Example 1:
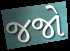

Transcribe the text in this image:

જજો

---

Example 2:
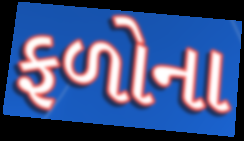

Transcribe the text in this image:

ફળોના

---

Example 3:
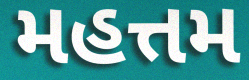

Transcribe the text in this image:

મહત્તમ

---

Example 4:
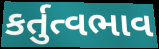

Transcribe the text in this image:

કર્તુત્વભાવ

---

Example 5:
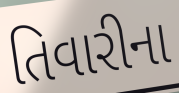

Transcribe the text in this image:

તિવારીના